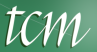
tcm